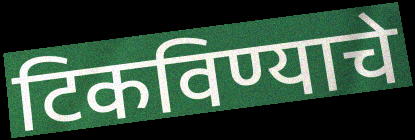
टिकविण्याचे